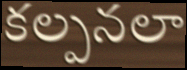
కల్పనలా